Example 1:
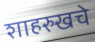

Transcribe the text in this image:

शाहरुखचे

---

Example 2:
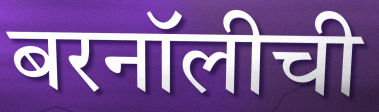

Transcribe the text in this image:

बरनॉलीची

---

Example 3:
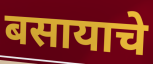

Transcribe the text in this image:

बसायाचे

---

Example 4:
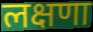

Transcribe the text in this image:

लक्षणा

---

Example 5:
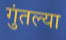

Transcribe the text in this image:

गुंतल्या